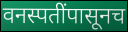
वनस्पतींपासूनच